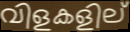
വിളകളില്